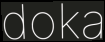
doka